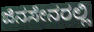
ಜಿನಸೇನರಲ್ಲಿ